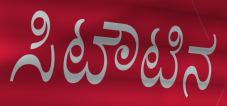
ಸಿಟೌಟಿನ